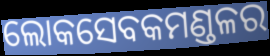
ଲୋକସେବକମଣ୍ଡଳର